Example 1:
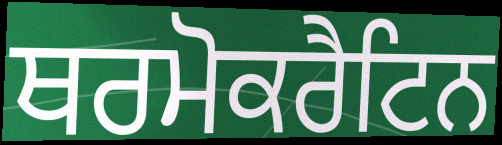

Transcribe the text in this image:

ਥਰਮੋਕਰੈਟਿਨ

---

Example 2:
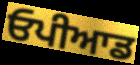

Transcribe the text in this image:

ਓਪੀਆਡ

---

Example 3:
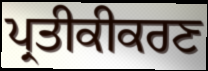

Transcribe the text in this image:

ਪ੍ਰਤੀਕੀਕਰਣ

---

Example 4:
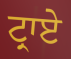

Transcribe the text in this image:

ਟ੍ਰਾਏ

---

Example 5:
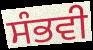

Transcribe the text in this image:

ਸੰਭਵੀ